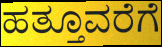
ಹತ್ತೂವರೆಗೆ